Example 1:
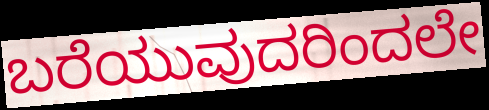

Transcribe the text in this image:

ಬರೆಯುವುದರಿಂದಲೇ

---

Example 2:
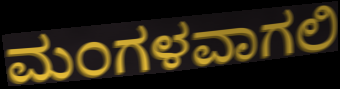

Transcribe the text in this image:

ಮಂಗಳವಾಗಲಿ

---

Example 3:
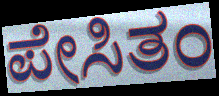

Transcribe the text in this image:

ಪೇಸಿತಂ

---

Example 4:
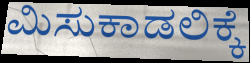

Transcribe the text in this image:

ಮಿಸುಕಾಡಲಿಕ್ಕೆ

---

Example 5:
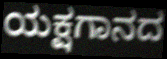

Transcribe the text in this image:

ಯಕ್ಷಗಾನದ